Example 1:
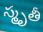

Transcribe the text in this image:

స్మృతీ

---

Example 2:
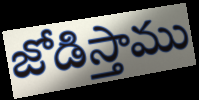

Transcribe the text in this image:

జోడిస్తాము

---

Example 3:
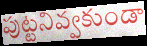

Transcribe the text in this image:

పుట్టనివ్వకుండా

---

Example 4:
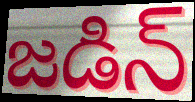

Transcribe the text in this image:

జడిన్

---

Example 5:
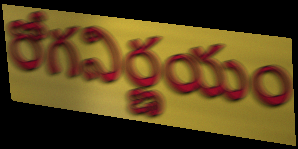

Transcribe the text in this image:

రోగనిర్ణయం